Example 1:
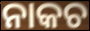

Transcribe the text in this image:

ନାକଚ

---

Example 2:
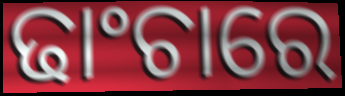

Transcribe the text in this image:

ଢାଂଚାରେ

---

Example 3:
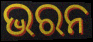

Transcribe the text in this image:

ଭରନ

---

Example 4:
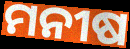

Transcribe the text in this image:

ମନୀଷ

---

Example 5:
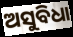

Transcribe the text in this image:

ଅସୁବିଧା